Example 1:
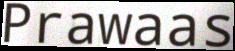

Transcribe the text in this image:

Prawaas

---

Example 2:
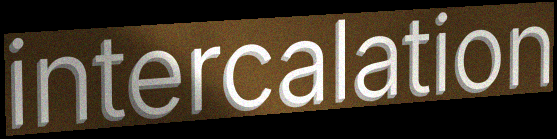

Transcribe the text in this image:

intercalation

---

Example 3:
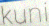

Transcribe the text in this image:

kuni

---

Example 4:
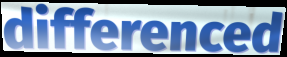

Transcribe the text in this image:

differenced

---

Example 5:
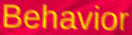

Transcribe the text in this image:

Behavior